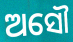
ଅସୌ